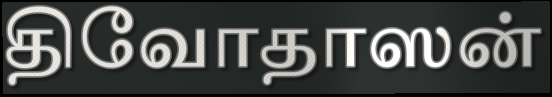
திவோதாஸன்